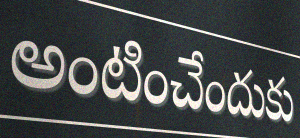
అంటించేందుకు